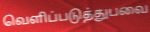
வெளிப்படுத்துபவை